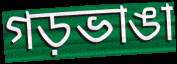
গড়ভাঙা